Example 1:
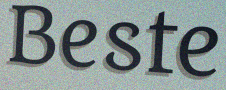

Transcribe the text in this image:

Beste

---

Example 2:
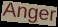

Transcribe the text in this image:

Anger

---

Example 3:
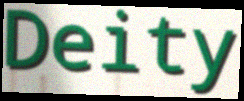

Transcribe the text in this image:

Deity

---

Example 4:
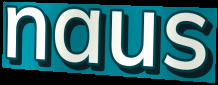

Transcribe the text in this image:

naus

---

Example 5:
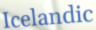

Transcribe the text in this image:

Icelandic